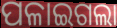
ପଳାଇଗଲା